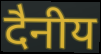
दैनीय